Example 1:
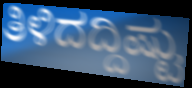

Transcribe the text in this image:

ತಿಳಿದದ್ದಿಷ್ಟು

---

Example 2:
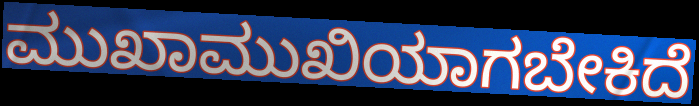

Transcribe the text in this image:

ಮುಖಾಮುಖಿಯಾಗಬೇಕಿದೆ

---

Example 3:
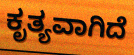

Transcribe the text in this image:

ಕೃತ್ಯವಾಗಿದೆ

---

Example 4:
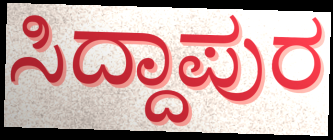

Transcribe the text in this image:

ಸಿದ್ದಾಪುರ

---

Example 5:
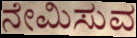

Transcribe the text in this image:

ನೇಮಿಸುವ